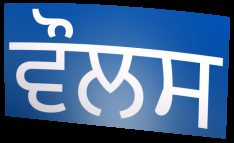
ਵੌਲਸ